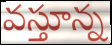
వస్తూన్న